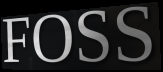
FOSS